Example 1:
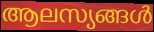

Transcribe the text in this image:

ആലസ്യങ്ങൾ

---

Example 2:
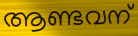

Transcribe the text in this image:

ആണ്ടവന്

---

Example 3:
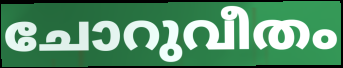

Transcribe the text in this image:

ചോറുവീതം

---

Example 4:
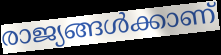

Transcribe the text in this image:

രാജ്യങ്ങൾക്കാണ്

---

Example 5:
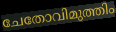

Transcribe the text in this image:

ചേതോവിമുത്തിം